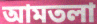
আমতলা